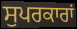
ਸੁਪਰਕਾਰਾਂ